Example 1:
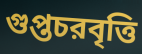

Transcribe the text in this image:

গুপ্তচরবৃত্তি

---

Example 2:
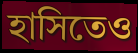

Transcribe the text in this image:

হাসিতেও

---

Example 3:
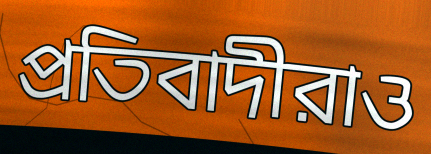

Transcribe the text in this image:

প্রতিবাদীরাও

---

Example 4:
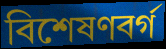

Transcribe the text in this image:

বিশেষণবর্গ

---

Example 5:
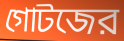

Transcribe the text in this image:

গোটজের